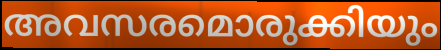
അവസരമൊരുക്കിയും